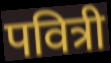
पवित्री